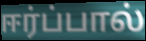
ஈர்ப்பால்